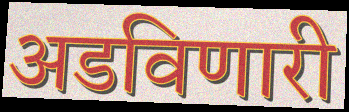
अडविणारी